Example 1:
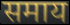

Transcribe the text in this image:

समाय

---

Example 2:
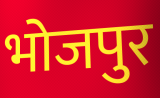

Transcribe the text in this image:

भोजपुर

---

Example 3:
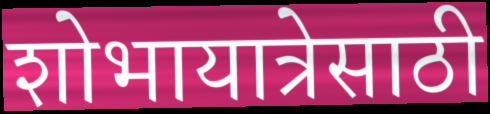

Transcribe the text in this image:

शोभायात्रेसाठी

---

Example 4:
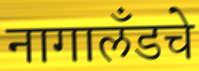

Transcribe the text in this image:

नागालँडचे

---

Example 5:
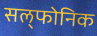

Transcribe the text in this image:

सल्फोनिक